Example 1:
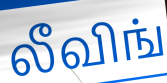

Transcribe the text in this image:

லீவிங்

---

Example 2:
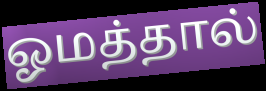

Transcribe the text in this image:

ஓமத்தால்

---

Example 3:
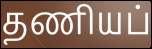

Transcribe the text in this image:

தணியப்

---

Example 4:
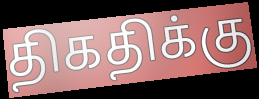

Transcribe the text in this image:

திகதிக்கு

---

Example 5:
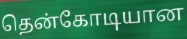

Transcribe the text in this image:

தென்கோடியான